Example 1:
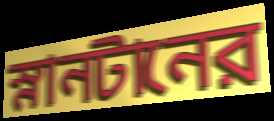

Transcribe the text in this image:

স্নানটানের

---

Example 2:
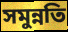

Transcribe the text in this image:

সমুন্নতি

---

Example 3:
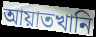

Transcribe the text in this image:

আয়াতখানি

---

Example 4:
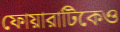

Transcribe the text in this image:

ফোয়ারাটিকেও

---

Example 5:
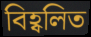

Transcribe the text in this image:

বিহ্বলিত